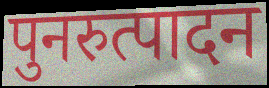
पुनरुत्पादन